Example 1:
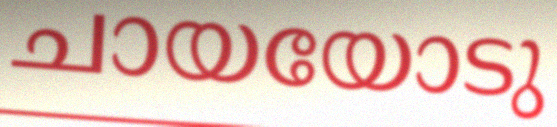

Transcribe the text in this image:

ചായയോടു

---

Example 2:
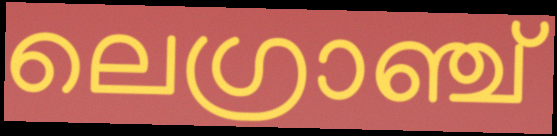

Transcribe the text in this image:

ലെഗ്രാഞ്ച്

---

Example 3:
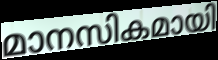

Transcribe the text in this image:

മാനസികമായി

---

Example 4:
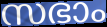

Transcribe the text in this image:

സഭാം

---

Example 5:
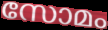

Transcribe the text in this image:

സോമം